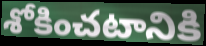
శోకించటానికి